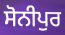
ਸੋਨੀਪੁਰ